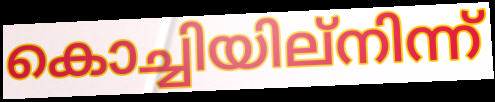
കൊച്ചിയില്നിന്ന്